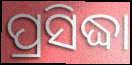
ପ୍ରସିଦ୍ଧା